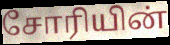
சோரியின்